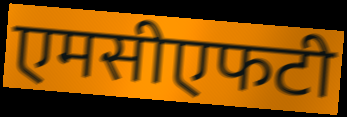
एमसीएफटी